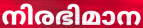
നിരഭിമാന